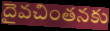
దైవచింతనకు